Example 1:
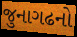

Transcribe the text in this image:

જુનાગઢનો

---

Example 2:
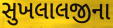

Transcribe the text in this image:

સુખલાલજીના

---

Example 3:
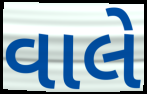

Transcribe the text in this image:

વાલે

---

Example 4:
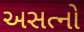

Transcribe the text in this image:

અસત્નો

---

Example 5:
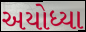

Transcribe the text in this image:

અયોધ્યા